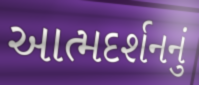
આત્મદર્શનનું